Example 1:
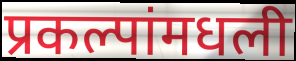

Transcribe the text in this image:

प्रकल्पांमधली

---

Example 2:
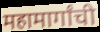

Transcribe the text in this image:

महामार्गांची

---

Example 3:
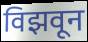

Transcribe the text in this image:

विझवून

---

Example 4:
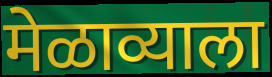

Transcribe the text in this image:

मेळाव्याला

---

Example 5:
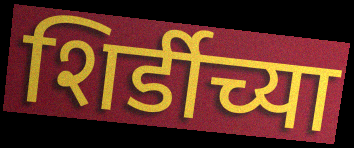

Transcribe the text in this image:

शिर्डीच्या